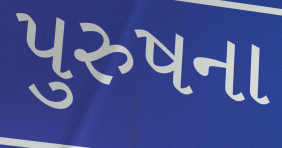
પુરુષના